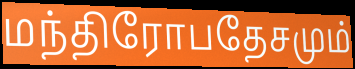
மந்திரோபதேசமும்